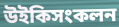
উইকিসংকলন